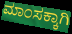
ಮಾಂಸಕ್ಕಾಗಿ